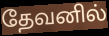
தேவனில்